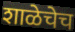
शाळेचेच